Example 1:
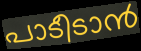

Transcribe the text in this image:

പാടീടാൻ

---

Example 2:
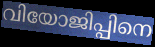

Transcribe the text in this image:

വിയോജിപ്പിനെ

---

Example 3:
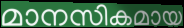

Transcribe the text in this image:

മാനസികമായ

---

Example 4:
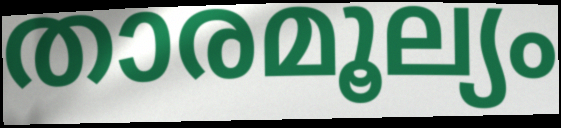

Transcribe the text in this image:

താരമൂല്യം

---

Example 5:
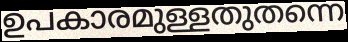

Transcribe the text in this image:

ഉപകാരമുള്ളതുതന്നെ